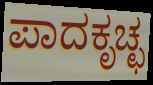
ಪಾದಕೃಚ್ಛ